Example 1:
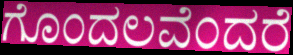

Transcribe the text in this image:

ಗೊಂದಲವೆಂದರೆ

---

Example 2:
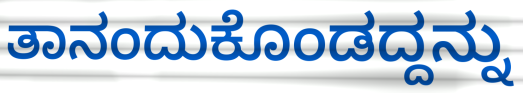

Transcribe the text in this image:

ತಾನಂದುಕೊಂಡದ್ದನ್ನು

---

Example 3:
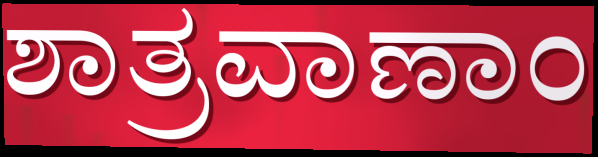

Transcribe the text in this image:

ಶಾತ್ರವಾಣಾಂ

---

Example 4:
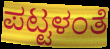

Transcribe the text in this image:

ಪಟ್ಟಳಂತೆ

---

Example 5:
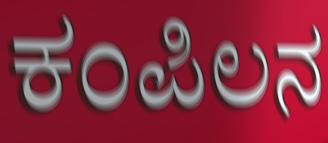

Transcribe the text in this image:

ಕಂಪಿಲನ